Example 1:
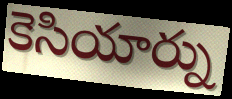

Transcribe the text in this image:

కెసియార్ను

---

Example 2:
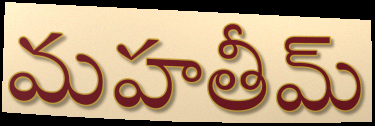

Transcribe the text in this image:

మహతీమ్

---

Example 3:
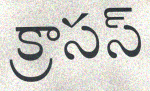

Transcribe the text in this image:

క్రాసస్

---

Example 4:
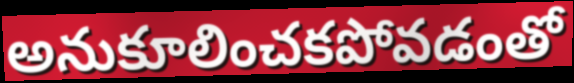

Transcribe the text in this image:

అనుకూలించకపోవడంతో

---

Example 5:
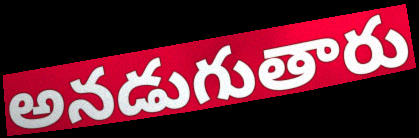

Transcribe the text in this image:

అనడుగుతారు